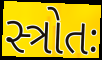
સ્ત્રોતઃ